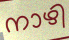
നാഴി